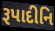
રૂપાદીનિ